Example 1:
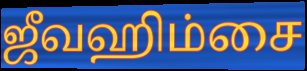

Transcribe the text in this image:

ஜீவஹிம்சை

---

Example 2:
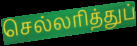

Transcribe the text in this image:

செல்லரித்துப்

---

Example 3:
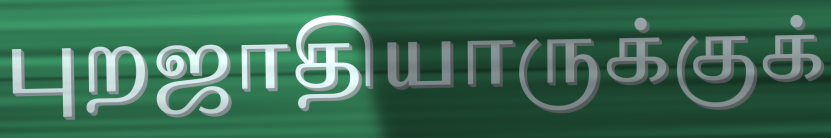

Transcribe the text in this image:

புறஜாதியாருக்குக்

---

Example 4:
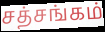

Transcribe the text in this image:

சத்சங்கம்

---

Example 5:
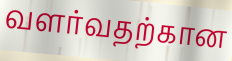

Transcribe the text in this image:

வளர்வதற்கான